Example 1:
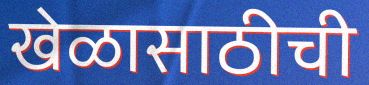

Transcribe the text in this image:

खेळासाठीची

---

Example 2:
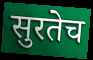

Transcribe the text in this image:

सुरतेच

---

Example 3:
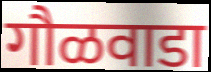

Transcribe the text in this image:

गौळवाडा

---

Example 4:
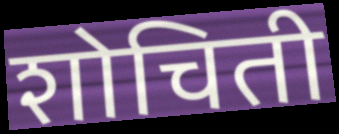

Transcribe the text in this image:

शोचिती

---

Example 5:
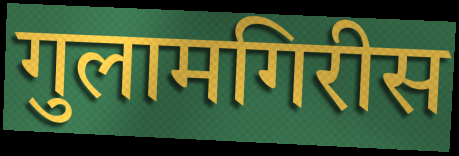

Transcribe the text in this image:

गुलामगिरीस